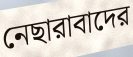
নেছারাবাদের